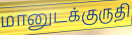
மானுடக்குருதி